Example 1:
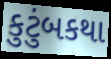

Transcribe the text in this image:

કુટુંબકથા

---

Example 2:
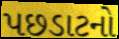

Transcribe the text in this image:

પછડાટનો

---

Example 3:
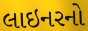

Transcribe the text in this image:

લાઇનરનો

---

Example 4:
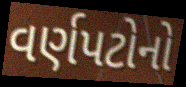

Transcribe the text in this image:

વર્ણપટોનો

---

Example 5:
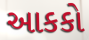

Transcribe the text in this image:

આકકો